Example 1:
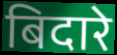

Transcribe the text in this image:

बिदारे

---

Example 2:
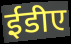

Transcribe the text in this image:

ईडीए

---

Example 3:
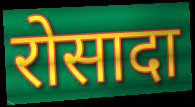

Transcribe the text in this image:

रोसादा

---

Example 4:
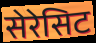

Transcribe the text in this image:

सेरेसिट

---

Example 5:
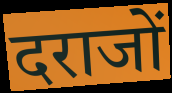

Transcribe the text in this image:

दराजों